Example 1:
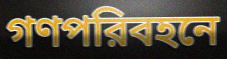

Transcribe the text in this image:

গণপরিবহনে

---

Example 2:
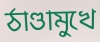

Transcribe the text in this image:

ঠাণ্ডামুখে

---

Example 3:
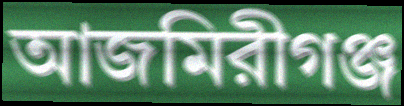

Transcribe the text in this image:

আজমিরীগঞ্জ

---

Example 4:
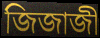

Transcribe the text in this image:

জিজাজী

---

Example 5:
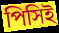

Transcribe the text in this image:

পিসিই